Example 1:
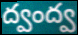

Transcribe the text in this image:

ద్వంద్వ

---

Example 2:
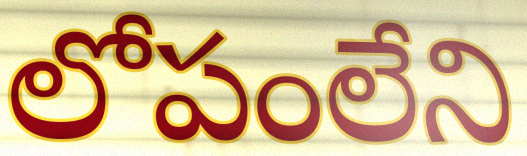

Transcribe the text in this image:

లోపంలేని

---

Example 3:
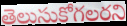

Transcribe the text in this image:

తెలుసుకోగలరని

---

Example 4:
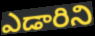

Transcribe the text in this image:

ఎడారిని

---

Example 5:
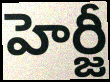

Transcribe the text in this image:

హెర్జీ